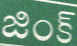
జింక్